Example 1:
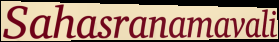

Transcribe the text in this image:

Sahasranamavali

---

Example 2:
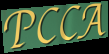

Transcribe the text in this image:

PCCA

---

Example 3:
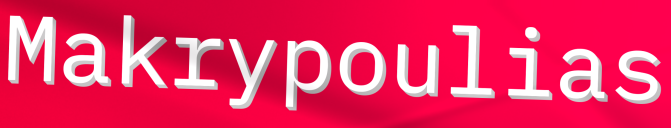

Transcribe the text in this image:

Makrypoulias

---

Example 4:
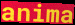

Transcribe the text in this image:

anima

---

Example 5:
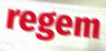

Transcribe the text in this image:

regem